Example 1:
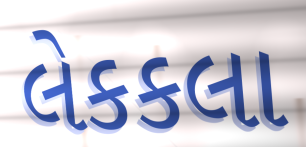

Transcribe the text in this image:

લેકકલા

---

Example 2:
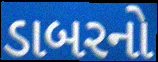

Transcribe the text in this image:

ડાબરનો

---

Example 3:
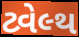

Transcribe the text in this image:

ટ્વેલ્થ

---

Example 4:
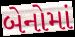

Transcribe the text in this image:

બેનોમાં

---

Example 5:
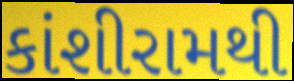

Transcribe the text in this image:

કાંશીરામથી